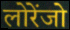
लोरेंजो